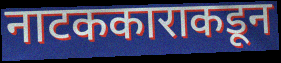
नाटककाराकडून